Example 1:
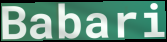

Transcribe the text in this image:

Babari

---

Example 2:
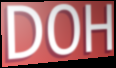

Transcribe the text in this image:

DOH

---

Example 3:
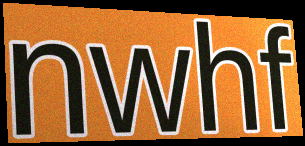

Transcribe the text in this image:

nwhf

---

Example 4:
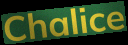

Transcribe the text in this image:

Chalice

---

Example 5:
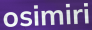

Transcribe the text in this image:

osimiri